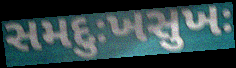
સમદુઃખસુખઃ